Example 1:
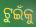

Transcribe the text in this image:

ଟୁଇଁକୁ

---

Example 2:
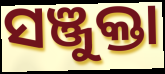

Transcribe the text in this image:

ସଞ୍ଜୁକ୍ତା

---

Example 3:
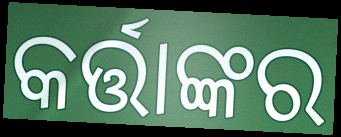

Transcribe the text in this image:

କର୍ତ୍ତାଙ୍କର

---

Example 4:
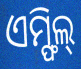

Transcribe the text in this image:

ଏମ୍ଫିଲ୍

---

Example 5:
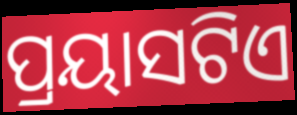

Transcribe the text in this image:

ପ୍ରୟାସଟିଏ